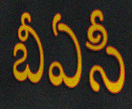
బీఏసీ